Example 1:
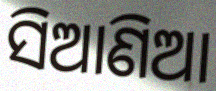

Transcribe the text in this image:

ସିଆଣିଆ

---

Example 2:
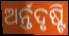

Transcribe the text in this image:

ଅର୍ନ୍ତଦୃଷ୍ଟି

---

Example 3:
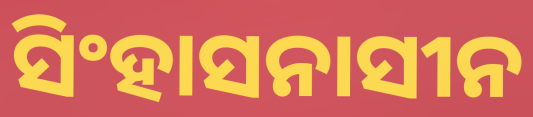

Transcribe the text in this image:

ସିଂହାସନାସୀନ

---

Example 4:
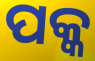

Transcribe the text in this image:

ପକ୍କ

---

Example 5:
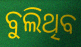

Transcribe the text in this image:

ବୁଲିଥିବ